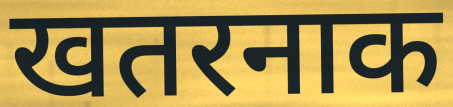
खतरनाक